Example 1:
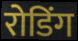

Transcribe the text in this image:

रोडिंग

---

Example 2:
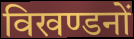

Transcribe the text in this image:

विखण्डनों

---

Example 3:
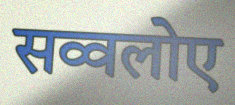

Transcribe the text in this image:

सव्वलोए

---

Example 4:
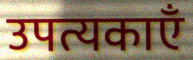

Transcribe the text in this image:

उपत्यकाएँ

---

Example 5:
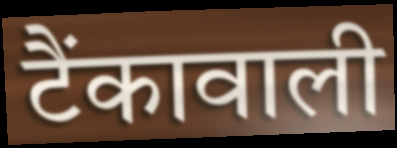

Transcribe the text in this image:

टैंकावाली